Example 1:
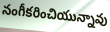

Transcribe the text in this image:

నంగీకరించియున్నావు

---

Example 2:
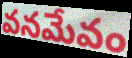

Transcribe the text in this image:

వనమేవం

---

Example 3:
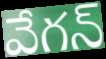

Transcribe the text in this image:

వేగన్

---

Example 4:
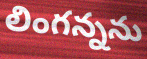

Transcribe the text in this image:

లింగన్నను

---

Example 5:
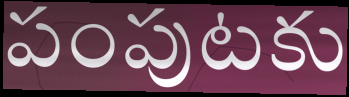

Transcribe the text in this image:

పంపుటకు